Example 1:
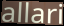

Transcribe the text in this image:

allari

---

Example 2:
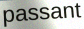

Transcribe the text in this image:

passant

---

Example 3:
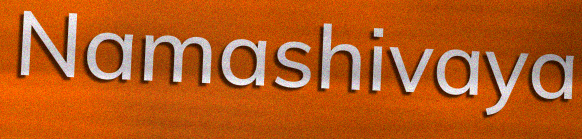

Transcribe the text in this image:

Namashivaya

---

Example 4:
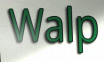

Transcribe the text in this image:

Walp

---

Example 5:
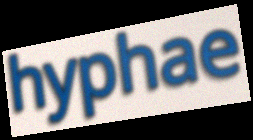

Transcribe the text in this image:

hyphae